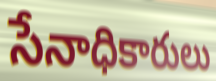
సేనాధికారులు